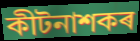
কীটনাশকৰ